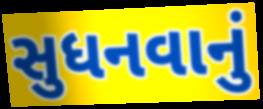
સુધનવાનું